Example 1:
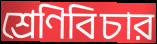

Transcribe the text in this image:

শ্রেণিবিচার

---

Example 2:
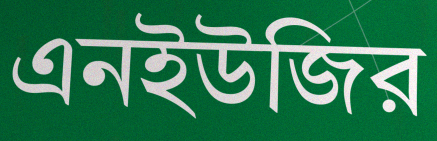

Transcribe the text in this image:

এনইউজির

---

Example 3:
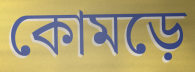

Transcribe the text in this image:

কোমড়ে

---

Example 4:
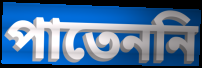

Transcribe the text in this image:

পাতেননি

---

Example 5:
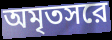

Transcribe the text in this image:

অমৃতসরে